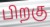
பிறகு